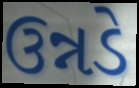
ઉન્નડે